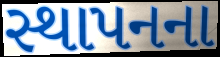
સ્થાપનના